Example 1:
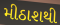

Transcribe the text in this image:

મીઠાશથી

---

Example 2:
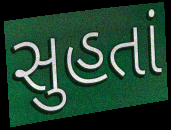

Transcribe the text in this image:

સુહતાં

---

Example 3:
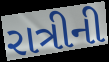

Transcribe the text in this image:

રાત્રીની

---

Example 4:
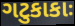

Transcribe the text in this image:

ગટુકાકાઃ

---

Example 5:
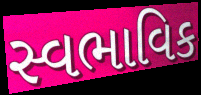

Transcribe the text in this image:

સ્વભાવિક